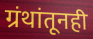
ग्रंथांतूनही